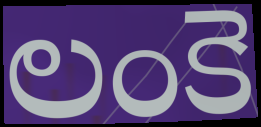
లంకె